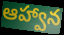
ఆహ్వాన